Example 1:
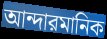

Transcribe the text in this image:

আন্দারমানিক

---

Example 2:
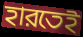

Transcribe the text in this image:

হারতেই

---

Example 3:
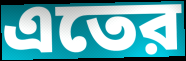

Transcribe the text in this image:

এতের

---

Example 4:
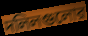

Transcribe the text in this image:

দলিলগুলোর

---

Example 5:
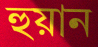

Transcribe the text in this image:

হুয়ান